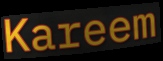
Kareem